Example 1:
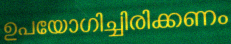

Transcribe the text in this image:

ഉപയോഗിച്ചിരിക്കണം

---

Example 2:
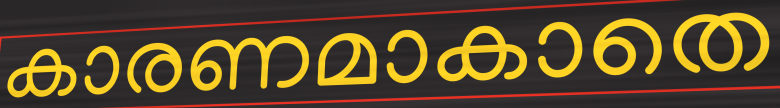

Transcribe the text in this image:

കാരണമാകാതെ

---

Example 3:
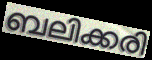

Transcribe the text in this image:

ബലിക്കരി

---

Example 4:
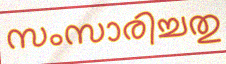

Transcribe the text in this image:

സംസാരിച്ചതു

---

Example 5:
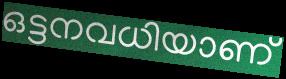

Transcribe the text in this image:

ഒട്ടനവധിയാണ്